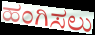
ಹಂಗಿಸಲು